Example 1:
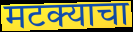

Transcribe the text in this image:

मटक्याचा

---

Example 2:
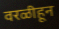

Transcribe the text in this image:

वरळीहून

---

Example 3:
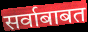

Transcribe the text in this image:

सर्वाबाबत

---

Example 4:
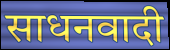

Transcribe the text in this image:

साधनवादी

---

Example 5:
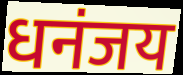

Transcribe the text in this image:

धनंजय